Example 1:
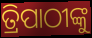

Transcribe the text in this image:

ତ୍ରିପାଠୀଙ୍କୁ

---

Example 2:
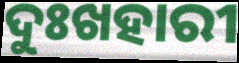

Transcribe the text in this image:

ଦୁଃଖହାରୀ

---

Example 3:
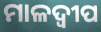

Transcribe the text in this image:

ମାଳଦ୍ଵୀପ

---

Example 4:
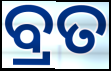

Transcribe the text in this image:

ବ୍ରତ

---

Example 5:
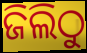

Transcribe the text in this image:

ଜିଲିଠୁ